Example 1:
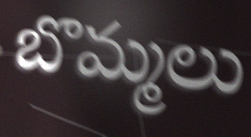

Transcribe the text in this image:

బొమ్మలు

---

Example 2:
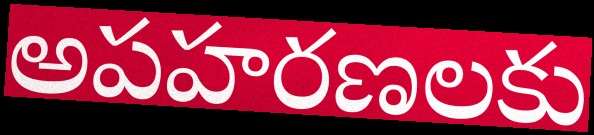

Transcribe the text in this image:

అపహరణలకు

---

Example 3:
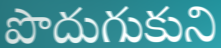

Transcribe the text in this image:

పొదుగుకుని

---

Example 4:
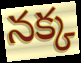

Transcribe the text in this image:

నక్క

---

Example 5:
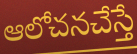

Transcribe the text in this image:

ఆలోచనచేస్తే